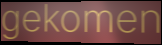
gekomen